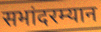
सभांदरम्यान